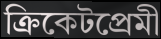
ক্রিকেটপ্রেমী